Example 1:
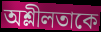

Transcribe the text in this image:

অশ্লীলতাকে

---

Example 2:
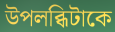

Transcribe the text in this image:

উপলব্ধিটাকে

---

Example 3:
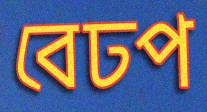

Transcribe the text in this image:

বেঢপ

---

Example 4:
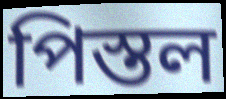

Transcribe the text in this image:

পিস্তল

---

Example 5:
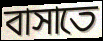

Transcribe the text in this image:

বাসাতে